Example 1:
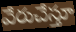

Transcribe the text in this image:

వేరుచేస్తూ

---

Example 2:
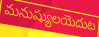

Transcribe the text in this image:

మనుష్యులయెదుట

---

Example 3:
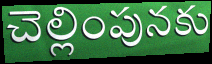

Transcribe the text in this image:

చెల్లింపునకు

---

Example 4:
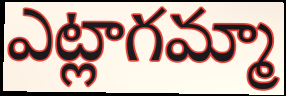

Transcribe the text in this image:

ఎట్లాగమ్మా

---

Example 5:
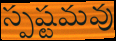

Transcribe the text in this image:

స్పష్టమవు